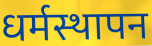
धर्मस्थापन